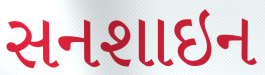
સનશાઇન